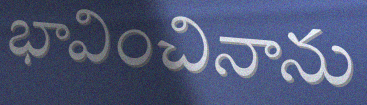
భావించినాను